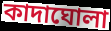
কাদাঘোলা